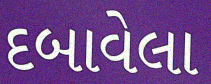
દબાવેલા